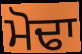
ਮੋਢਾ